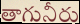
తాగునీరు